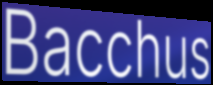
Bacchus